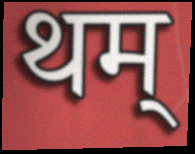
थम्